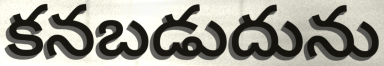
కనబడుదును